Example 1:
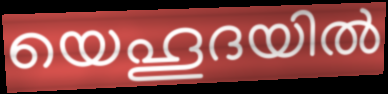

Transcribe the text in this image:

യെഹൂദയിൽ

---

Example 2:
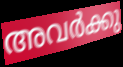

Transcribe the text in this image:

അവർക്കു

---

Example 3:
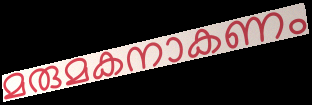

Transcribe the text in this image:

മരുമകനാകണം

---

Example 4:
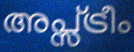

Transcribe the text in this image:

അപ്സ്ട്രീം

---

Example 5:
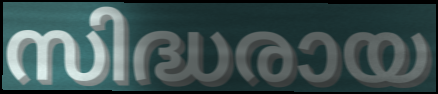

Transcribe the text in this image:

സിദ്ധരായ